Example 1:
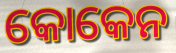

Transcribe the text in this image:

କୋକେନ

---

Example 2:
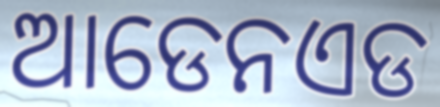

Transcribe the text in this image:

ଆଡେନଏଡ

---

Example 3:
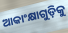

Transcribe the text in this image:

ଆକାଂକ୍ଷାଗୁଡ଼ିକୁ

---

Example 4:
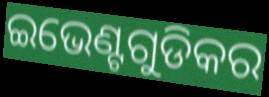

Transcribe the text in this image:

ଇଭେଣ୍ଟଗୁଡିକର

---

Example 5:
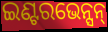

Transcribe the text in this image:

ଇଣ୍ଟରଭେନ୍ସନ୍